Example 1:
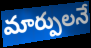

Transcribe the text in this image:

మార్పులనే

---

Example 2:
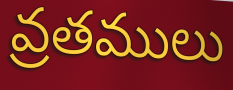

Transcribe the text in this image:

వ్రతములు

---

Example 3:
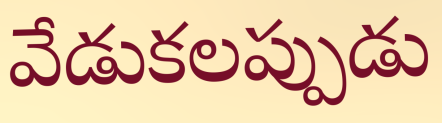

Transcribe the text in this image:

వేడుకలప్పుడు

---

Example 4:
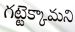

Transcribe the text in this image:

గట్టెక్కామని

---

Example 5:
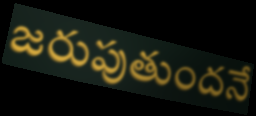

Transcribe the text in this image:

జరుపుతుందనే